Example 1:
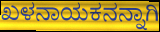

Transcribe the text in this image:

ಖಳನಾಯಕನನ್ನಾಗಿ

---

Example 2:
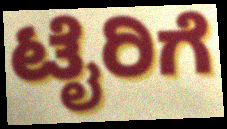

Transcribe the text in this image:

ಟೈರಿಗೆ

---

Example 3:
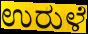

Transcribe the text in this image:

ಉರುಳೆ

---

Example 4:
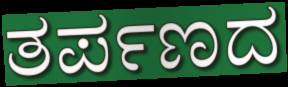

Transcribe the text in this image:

ತರ್ಪಣದ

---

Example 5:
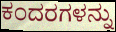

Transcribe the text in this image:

ಕಂದರಗಳನ್ನು